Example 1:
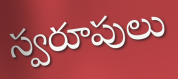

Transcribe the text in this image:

స్వరూపులు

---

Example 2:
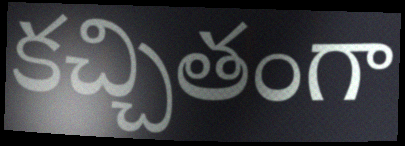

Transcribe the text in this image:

కచ్చితంగా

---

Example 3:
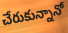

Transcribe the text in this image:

చేరుకున్నానో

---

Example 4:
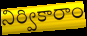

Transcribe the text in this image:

నిర్వికారాం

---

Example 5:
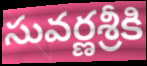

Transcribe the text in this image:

సువర్ణశ్రీకి